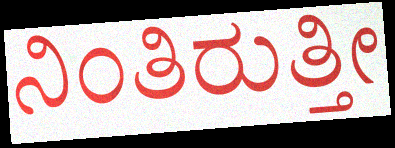
ನಿಂತಿರುತ್ತೀ